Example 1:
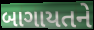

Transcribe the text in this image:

બાગાયતને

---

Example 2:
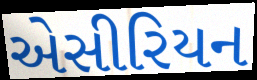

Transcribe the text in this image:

એસીરિયન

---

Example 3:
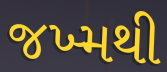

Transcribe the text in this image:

જખ્મથી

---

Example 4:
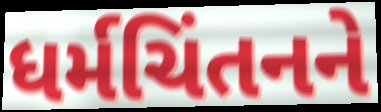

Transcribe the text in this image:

ધર્મચિંતનને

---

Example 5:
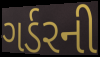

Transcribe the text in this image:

ગર્ડરની